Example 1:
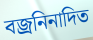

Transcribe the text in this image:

বজ্রনিনাদিত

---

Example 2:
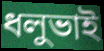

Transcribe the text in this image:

ধলুভাই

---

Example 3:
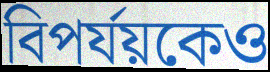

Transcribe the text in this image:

বিপর্যয়কেও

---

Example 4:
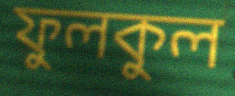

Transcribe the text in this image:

ফুলকুল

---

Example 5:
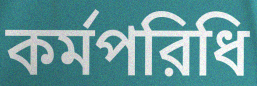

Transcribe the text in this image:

কর্মপরিধি